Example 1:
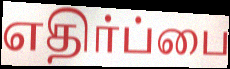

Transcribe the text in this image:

எதிர்ப்பை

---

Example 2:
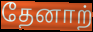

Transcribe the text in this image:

தேனாற்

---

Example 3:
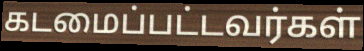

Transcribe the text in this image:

கடமைப்பட்டவர்கள்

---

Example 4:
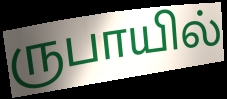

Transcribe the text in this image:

ருபாயில்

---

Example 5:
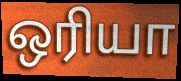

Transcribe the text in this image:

ஒரியா